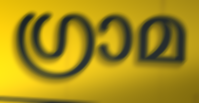
ഗ്രാമ